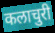
कलाचुरी